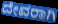
ದೇವರಾಗಿ